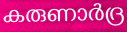
കരുണാർദ്ര